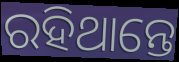
ରହିଥାନ୍ତେ